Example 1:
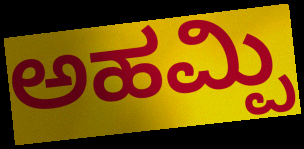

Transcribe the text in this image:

ಅಹಮ್ಪಿ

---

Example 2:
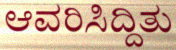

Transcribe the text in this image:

ಆವರಿಸಿದ್ದಿತು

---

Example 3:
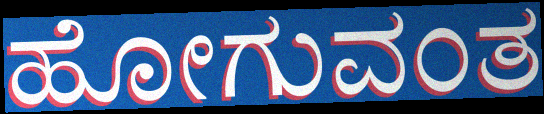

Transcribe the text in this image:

ಹೋಗುವಂತ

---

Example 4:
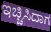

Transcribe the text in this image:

ಇಚ್ಚಿಸಿದಾಗ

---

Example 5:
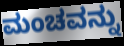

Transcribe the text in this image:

ಮಂಚವನ್ನು